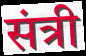
संत्री